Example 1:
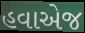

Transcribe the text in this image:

હવાએજ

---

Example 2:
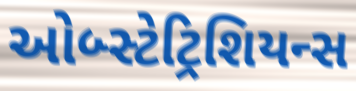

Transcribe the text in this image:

ઓબ્સ્ટેટ્રિશિયન્સ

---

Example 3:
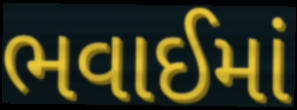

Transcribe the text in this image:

ભવાઈમાં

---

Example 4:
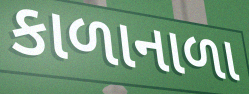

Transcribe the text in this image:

કાળાનાળા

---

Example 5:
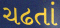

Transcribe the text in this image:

ચઢતાં